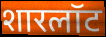
शारलॉट